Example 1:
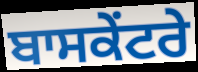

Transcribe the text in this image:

ਬਾਸਕੇਂਟਰੇ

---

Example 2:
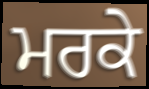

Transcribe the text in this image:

ਮਰਕੇ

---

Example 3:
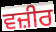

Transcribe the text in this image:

ਵਜ਼ੀਰ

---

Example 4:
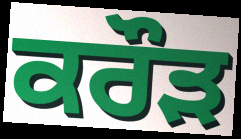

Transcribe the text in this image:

ਕਰੌੜ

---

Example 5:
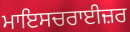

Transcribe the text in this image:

ਮਾਇਸਚਰਾਈਜ਼ਰ